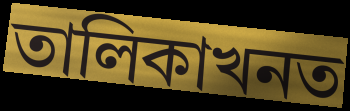
তালিকাখনত